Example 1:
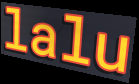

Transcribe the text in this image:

lalu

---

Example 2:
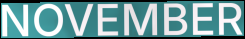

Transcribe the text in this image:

NOVEMBER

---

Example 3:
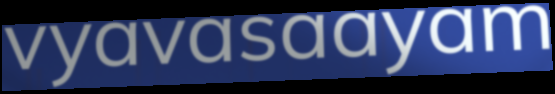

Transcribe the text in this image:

vyavasaayam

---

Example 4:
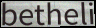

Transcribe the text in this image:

betheli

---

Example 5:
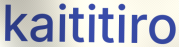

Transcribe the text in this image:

kaititiro